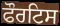
ਫੌਰਟਿਸ